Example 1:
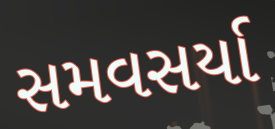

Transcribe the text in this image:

સમવસર્યા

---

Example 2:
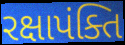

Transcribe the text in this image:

રક્ષાપંક્તિ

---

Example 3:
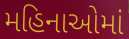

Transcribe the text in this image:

મહિનાઓમાં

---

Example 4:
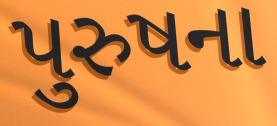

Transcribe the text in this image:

પુરુષના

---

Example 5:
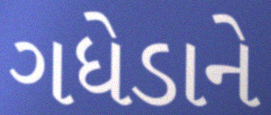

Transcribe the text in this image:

ગધેડાને